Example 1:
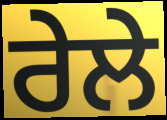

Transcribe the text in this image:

ਰੇਲੇ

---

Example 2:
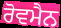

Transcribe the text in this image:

ਰੋਵਮੈਨ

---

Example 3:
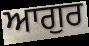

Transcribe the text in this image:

ਆਗੁਰ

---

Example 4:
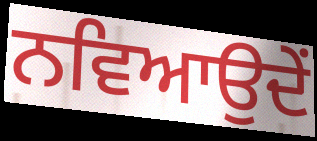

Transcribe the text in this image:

ਨਵਿਆਉਦੇਂ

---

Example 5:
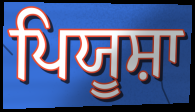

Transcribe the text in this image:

ਪਿਯੂਸ਼ਾ